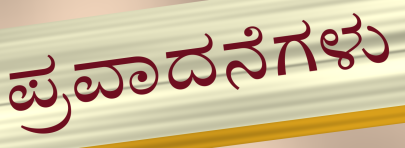
ಪ್ರವಾದನೆಗಳು